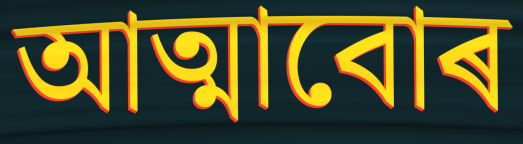
আত্মাবোৰ